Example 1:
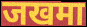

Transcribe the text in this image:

जखमा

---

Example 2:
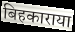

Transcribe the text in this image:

बिहकाराया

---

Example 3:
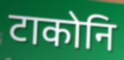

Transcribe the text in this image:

टाकोनि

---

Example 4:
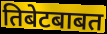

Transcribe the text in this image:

तिबेटबाबत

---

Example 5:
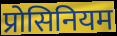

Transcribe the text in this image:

प्रोसिनियम